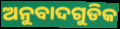
ଅନୁବାଦଗୁଡିକ